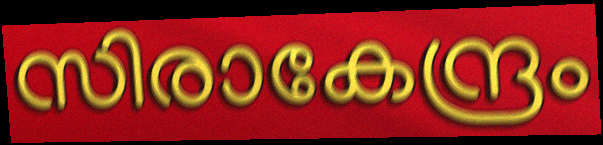
സിരാകേന്ദ്രം